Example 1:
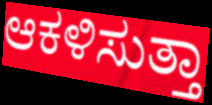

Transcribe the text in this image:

ಆಕಳಿಸುತ್ತಾ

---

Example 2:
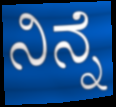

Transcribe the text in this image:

ನಿನ್ನೆ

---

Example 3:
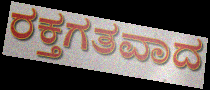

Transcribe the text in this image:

ರಕ್ತಗತವಾದ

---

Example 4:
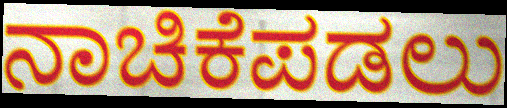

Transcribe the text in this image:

ನಾಚಿಕೆಪಡಲು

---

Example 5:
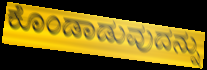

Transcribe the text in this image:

ಕೊಂಡಾಡುವುದನ್ನು